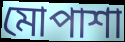
মোপাশা